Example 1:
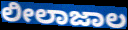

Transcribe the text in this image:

ಲೀಲಾಜಾಲ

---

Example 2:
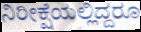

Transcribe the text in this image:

ನಿರೀಕ್ಷೆಯಲ್ಲಿದ್ದರೂ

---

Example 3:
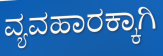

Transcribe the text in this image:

ವ್ಯವಹಾರಕ್ಕಾಗಿ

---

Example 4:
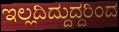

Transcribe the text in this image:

ಇಲ್ಲದಿದ್ದುದ್ದರಿಂದ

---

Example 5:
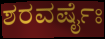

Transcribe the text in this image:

ಶರವರ್ಷೈಃ